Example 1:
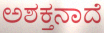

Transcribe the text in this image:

ಅಶಕ್ತನಾದೆ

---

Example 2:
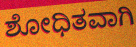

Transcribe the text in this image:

ಶೋಧಿತವಾಗಿ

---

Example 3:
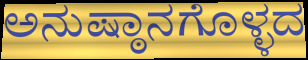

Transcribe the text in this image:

ಅನುಷ್ಠಾನಗೊಳ್ಳದ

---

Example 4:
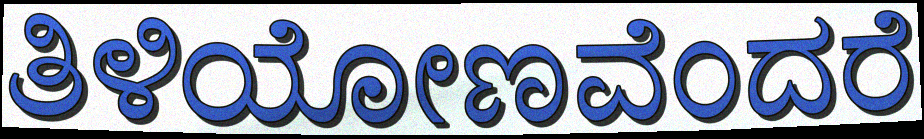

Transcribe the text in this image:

ತಿಳಿಯೋಣವೆಂದರೆ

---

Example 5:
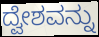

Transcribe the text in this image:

ದ್ವೇಶವನ್ನು